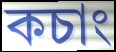
কচাং